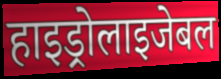
हाइड्रोलाइजेबल